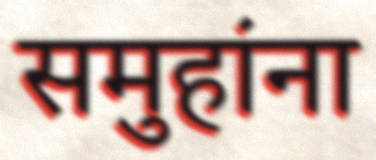
समुहांना